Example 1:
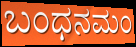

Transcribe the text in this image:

ಬಂಧನಮಂ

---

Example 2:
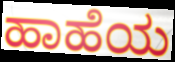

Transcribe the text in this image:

ಹಾಹೆಯ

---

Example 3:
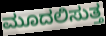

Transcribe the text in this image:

ಮೂದಲಿಸುತ್ತ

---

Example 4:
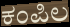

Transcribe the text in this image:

ಕಂಪಿಲ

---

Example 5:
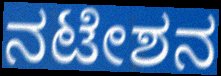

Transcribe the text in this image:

ನಟೇಶನ